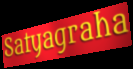
Satyagraha